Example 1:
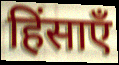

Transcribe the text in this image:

हिंसाएँ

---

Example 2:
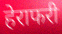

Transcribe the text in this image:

हेराफरी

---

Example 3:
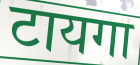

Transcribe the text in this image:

टायगा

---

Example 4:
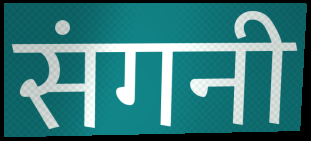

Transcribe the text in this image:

संगनी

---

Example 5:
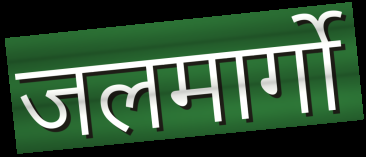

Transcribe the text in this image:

जलमार्गो